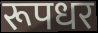
रूपधर